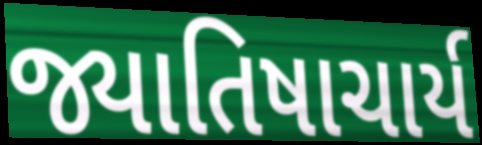
જ્યાતિષાચાર્ય